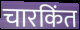
चारकिंत